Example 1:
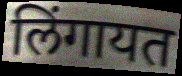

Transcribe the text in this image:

लिंगायत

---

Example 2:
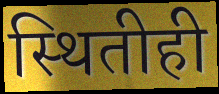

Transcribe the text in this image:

स्थितीही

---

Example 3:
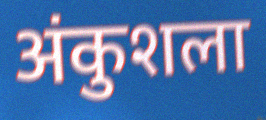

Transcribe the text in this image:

अंकुशला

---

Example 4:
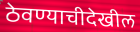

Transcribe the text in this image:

ठेवण्याचीदेखील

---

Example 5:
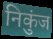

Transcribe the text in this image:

निकुंज